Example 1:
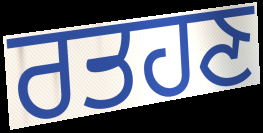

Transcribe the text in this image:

ਰਤਹਣ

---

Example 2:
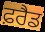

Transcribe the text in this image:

ਫ਼ਰੈਡ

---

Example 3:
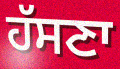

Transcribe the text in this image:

ਹੱਸਣਾ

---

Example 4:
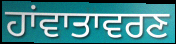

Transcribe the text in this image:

ਹਾਂਵਾਤਾਵਰਣ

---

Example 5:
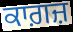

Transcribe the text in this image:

ਕਾਗ਼ਜ਼